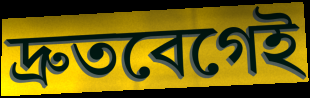
দ্রুতবেগেই